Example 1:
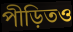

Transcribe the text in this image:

পীড়িতও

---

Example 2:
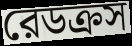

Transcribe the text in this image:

রেডক্রস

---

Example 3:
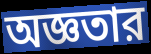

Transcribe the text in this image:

অজ্ঞতার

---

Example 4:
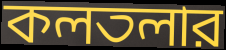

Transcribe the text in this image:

কলতলার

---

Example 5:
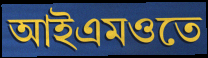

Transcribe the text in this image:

আইএমওতে